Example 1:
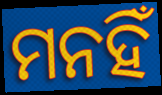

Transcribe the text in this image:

ମନହିଁ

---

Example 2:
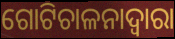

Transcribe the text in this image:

ଗୋଟିଚାଳନାଦ୍ୱାରା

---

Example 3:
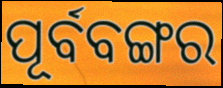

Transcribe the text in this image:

ପୂର୍ବବଙ୍ଗର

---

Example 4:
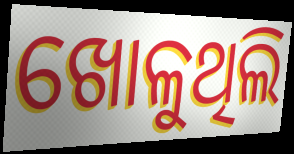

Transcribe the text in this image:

ଖୋଳୁଥିଲି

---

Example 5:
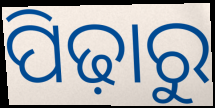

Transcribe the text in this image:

ପିଢ଼ାରୁ